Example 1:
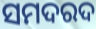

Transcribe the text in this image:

ସମଦରଦ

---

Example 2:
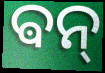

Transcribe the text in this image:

ଵନ୍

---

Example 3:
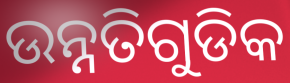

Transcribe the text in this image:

ଉନ୍ନତିଗୁଡିକ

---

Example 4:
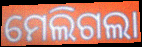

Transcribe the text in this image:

ମେଲିଗଲା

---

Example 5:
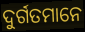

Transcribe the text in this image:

ଦୁର୍ଗତମାନେ